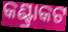
କଣ୍ଟ୍ରାକଟ